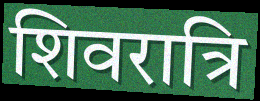
शिवरात्रि